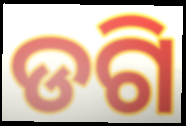
ଡଗି